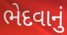
ભેદવાનું